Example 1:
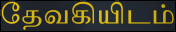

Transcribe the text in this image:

தேவகியிடம்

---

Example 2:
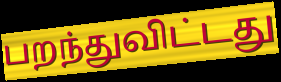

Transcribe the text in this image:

பறந்துவிட்டது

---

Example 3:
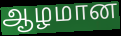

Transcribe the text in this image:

ஆழமான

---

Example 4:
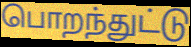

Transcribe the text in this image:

பொறந்துட்டு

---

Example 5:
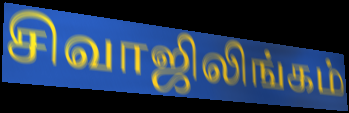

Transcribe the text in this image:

சிவாஜிலிங்கம்